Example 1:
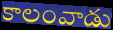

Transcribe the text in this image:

కాలంవాడు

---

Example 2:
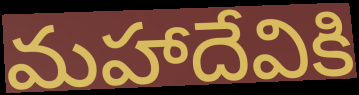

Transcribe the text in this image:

మహాదేవికి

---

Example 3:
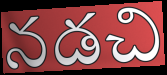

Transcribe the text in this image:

నడచి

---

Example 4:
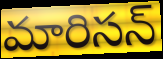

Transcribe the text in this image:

మారిసన్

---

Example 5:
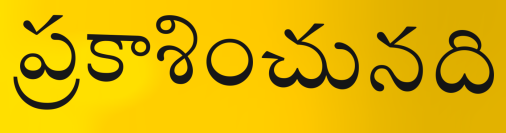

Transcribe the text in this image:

ప్రకాశించునది